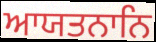
ਆਯਤਨਾਨਿ